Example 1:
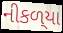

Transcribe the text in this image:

નીકળ્‌યા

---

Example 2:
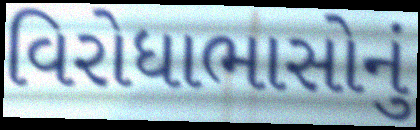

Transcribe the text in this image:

વિરોધાભાસોનું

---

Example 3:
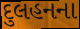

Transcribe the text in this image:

દુલહનના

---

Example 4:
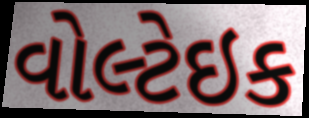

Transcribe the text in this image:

વોલ્ટેઇક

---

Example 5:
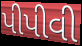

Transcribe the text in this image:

પીપીવી